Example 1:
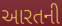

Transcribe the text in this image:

આરતની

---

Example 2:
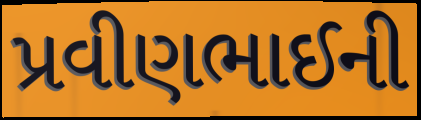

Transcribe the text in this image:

પ્રવીણભાઈની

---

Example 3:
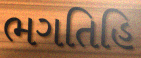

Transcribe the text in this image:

ભગતિહિ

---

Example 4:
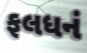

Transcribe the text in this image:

ફલધનં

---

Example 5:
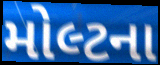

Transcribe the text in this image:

મોલ્ટના